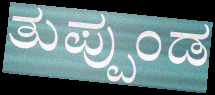
ತುಪ್ಪುಂಡ